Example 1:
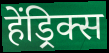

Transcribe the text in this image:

हेंड्रिक्स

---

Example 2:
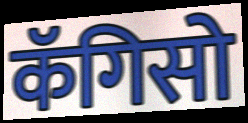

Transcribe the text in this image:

कॅगिसो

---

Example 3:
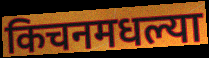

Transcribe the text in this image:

किचनमधल्या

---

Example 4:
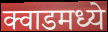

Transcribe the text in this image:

क्वाडमध्ये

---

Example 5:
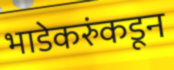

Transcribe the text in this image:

भाडेकरुंकडून